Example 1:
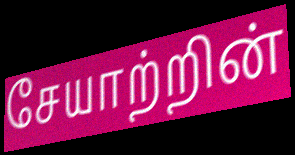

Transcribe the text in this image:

சேயாற்றின்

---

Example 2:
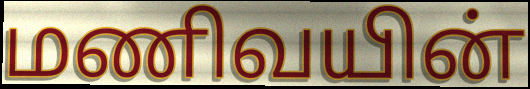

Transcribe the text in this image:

மணிவயின்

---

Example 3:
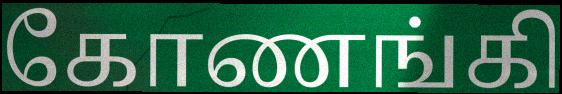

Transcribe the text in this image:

கோணங்கி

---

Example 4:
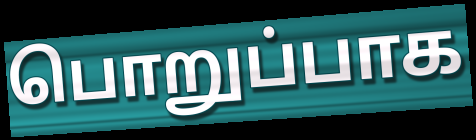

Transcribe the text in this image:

பொறுப்பாக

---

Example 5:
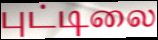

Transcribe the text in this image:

புட்டிலை